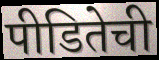
पीडितेची